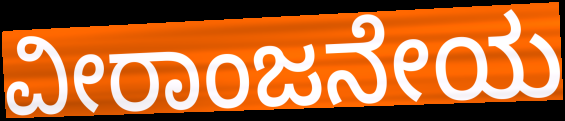
ವೀರಾಂಜನೇಯ